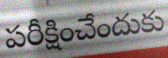
పరీక్షించేందుకు